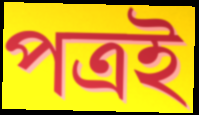
পত্ৰই